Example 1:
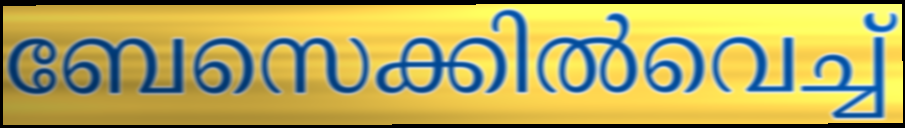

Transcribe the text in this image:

ബേസെക്കിൽവെച്ച്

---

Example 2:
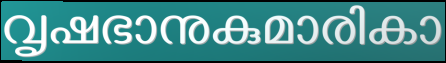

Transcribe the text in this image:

വൃഷഭാനുകുമാരികാ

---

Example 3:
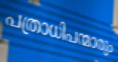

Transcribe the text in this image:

പത്രാധിപന്മാരും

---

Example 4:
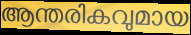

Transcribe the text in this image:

ആന്തരികവുമായ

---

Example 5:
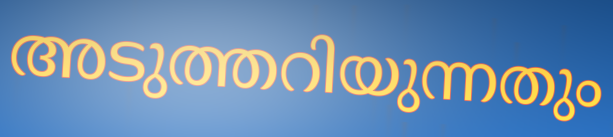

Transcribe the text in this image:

അടുത്തറിയുന്നതും